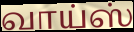
வாய்ஸ்